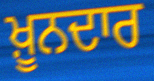
ਖ਼ੂਨਦਾਰ